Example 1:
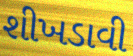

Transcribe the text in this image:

શીખડાવી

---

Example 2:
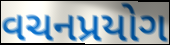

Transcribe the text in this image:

વચનપ્રયોગ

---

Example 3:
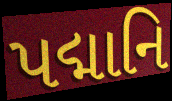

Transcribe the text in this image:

પદ્માનિ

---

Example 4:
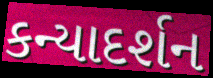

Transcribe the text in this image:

કન્યાદર્શન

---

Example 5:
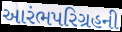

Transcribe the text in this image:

આરંભપરિગ્રહની